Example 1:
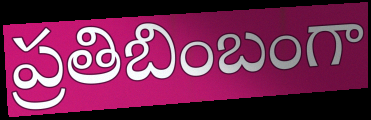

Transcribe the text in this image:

ప్రతిబింబంగా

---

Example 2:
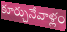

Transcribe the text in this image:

కూర్చునేవాళ్లం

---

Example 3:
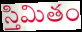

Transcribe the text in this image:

స్తిమితం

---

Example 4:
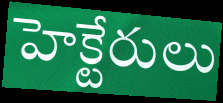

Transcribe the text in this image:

హెక్టేరులు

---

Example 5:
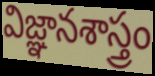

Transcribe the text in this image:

విజ్ఞానశాస్త్రం